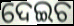
ଦେଇଚ